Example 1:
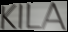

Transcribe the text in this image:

KILA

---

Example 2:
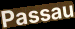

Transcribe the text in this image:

Passau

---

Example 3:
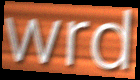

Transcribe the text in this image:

wrd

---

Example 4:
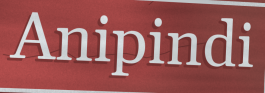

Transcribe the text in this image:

Anipindi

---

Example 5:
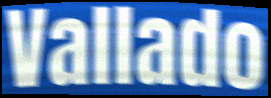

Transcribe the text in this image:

Vallado